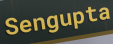
Sengupta